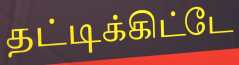
தட்டிக்கிட்டே